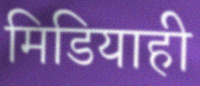
मिडियाही